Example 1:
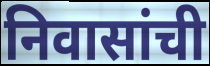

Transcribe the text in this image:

निवासांची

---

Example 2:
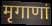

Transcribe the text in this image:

मृगाणां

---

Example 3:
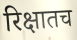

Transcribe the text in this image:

रिक्षातच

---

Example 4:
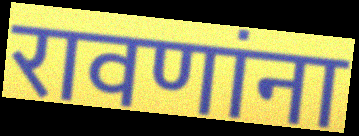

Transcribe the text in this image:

रावणांना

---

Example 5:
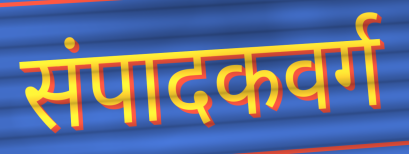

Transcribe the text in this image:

संपादकवर्ग